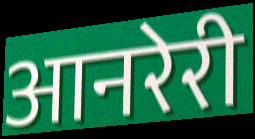
आनरेरी